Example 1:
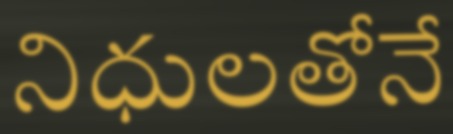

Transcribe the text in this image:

నిధులతోనే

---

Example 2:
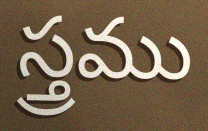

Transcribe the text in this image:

స్త్రము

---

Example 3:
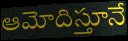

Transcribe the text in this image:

ఆమోదిస్తూనే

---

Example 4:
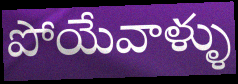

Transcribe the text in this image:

పోయేవాళ్ళు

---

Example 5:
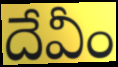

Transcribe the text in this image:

దేవీం